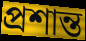
প্ৰশান্ত